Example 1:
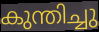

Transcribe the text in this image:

കുന്തിച്ചു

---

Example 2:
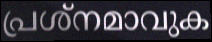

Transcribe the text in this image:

പ്രശ്നമാവുക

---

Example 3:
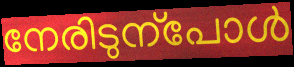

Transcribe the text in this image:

നേരിടുന്പോൾ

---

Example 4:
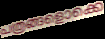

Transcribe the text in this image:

പത്രങ്ങളൊക്കെ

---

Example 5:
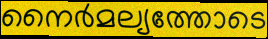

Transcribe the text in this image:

നൈർമല്യത്തോടെ